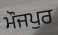
ਮੌਜਪੁਰ